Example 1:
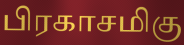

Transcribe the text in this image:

பிரகாசமிகு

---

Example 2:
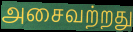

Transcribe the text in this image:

அசைவற்றது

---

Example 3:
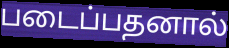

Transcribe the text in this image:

படைப்பதனால்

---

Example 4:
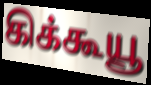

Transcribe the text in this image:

கிக்கூயூ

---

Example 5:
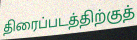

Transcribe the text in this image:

திரைப்படத்திற்குத்